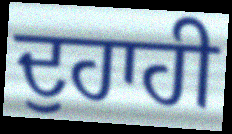
ਦੁਹਾਹੀ